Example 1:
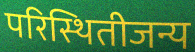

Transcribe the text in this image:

परिस्थितीजन्य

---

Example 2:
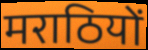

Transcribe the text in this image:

मराठियों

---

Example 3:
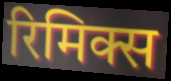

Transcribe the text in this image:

रिमिक्स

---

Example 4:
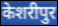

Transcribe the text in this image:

केशरीपुर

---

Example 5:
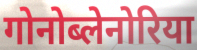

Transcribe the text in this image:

गोनोब्लेनोरिया